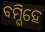
ବମ୍ଭିହେ